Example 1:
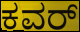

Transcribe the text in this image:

ಕವರ್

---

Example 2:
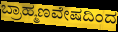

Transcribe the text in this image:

ಬ್ರಾಹ್ಮಣವೇಷದಿಂದ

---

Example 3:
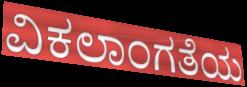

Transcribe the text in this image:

ವಿಕಲಾಂಗತೆಯ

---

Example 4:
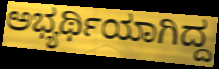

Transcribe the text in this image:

ಅಭ್ಯರ್ಥಿಯಾಗಿದ್ದ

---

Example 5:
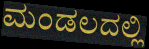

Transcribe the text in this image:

ಮಂಡಲದಲ್ಲಿ